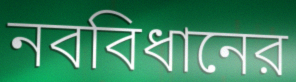
নববিধানের